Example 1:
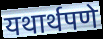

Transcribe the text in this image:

यथार्थपणे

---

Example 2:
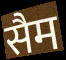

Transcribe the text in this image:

सैम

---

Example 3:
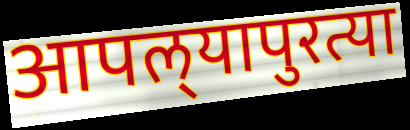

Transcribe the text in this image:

आपल्यापुरत्या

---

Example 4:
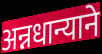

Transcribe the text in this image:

अन्नधान्याने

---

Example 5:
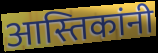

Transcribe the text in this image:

आस्तिकांनी